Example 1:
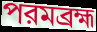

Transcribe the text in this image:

পরমব্রহ্ম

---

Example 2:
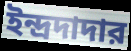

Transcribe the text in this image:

ইন্দ্রদাদার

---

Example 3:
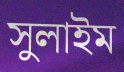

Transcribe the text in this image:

সুলাইম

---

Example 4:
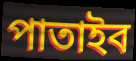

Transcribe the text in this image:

পাতাইব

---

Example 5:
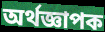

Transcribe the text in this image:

অর্থজ্ঞাপক